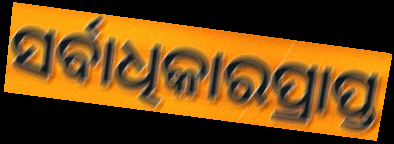
ସର୍ବାଧିକାରପ୍ରାପ୍ତ